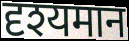
दृश्यमान